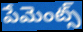
పేమెంట్స్